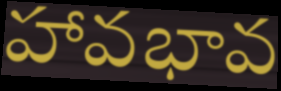
హావభావ